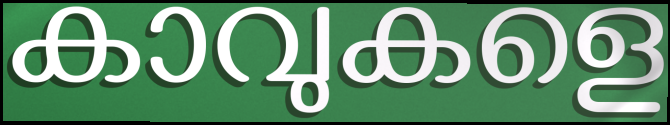
കാവുകളെ